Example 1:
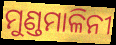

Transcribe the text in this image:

ମୁଣ୍ଡମାଳିନୀ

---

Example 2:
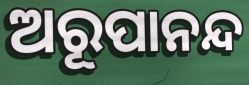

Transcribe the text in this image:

ଅରୂପାନନ୍ଦ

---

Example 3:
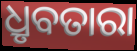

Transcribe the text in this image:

ଧ୍ରୃବତାରା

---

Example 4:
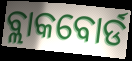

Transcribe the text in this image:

ବ୍ଲାକବୋର୍ଡ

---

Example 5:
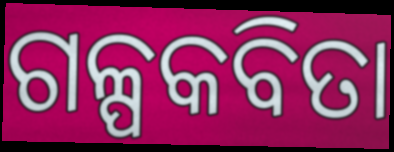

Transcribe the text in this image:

ଗଳ୍ପକବିତା